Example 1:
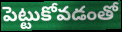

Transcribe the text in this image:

పెట్టుకోవడంతో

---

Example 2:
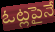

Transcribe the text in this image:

ఓట్లపైనే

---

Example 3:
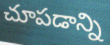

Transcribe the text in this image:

చూపడాన్ని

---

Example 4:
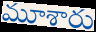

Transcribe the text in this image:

మూశారు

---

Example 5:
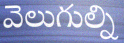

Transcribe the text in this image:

వెలుగుల్ని